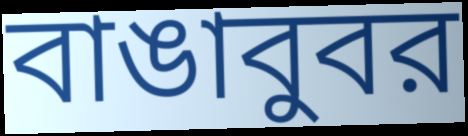
বাঙাবুবর